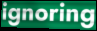
ignoring